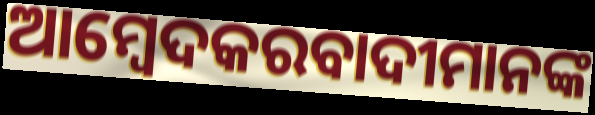
ଆମ୍ବେଦକରବାଦୀମାନଙ୍କ